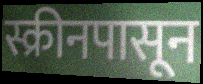
स्क्रीनपासून